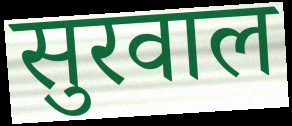
सुरवाल